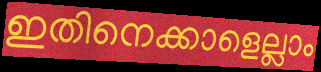
ഇതിനെക്കാളെല്ലാം